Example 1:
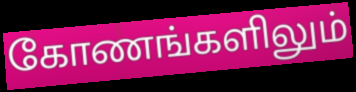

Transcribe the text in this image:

கோணங்களிலும்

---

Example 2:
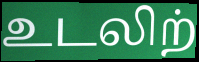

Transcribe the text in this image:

உடலிற்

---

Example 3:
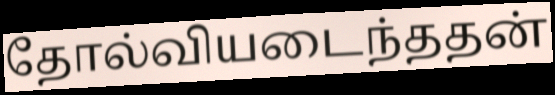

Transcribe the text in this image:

தோல்வியடைந்ததன்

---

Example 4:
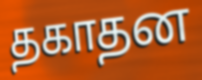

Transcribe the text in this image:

தகாதன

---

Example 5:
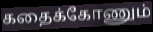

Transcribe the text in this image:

கதைக்கோணும்